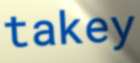
takey